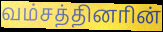
வம்சத்தினரின்